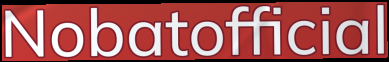
Nobatofficial